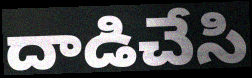
దాడిచేసి